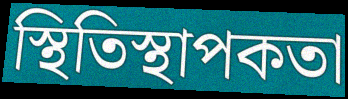
স্থিতিস্থাপকতা